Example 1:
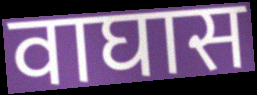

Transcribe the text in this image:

वाघास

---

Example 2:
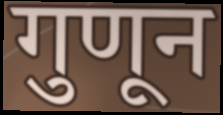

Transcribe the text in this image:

गुणून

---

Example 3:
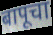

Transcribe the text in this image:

बापूचा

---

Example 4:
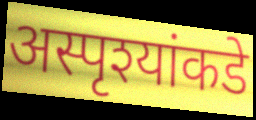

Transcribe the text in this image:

अस्पृश्यांकडे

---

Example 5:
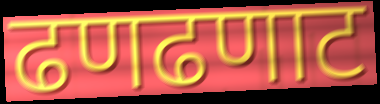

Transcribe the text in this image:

ढणढणाट